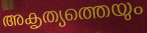
അകൃത്യത്തെയും